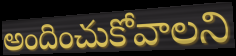
అందించుకోవాలని